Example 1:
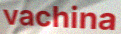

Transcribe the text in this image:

vachina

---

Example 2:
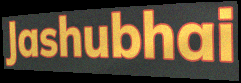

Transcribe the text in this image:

Jashubhai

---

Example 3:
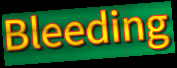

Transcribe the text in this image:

Bleeding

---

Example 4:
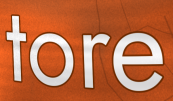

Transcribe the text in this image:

tore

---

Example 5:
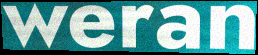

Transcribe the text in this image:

weran